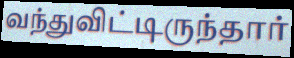
வந்துவிட்டிருந்தார்